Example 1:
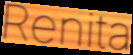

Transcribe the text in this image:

Renita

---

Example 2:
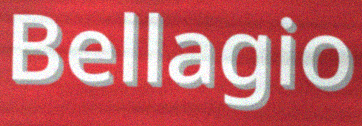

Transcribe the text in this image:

Bellagio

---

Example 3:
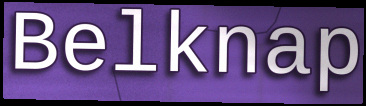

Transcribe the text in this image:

Belknap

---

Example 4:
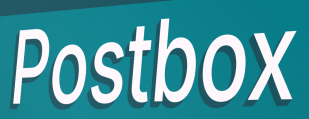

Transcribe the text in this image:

Postbox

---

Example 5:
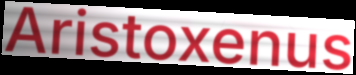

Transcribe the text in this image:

Aristoxenus